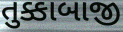
તુક્કાબાજી